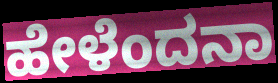
ಹೇಳೆಂದನಾ